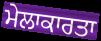
ਮੇਲਾਕਾਰਤਾ